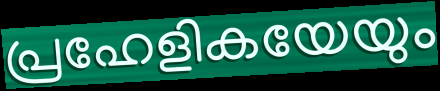
പ്രഹേളികയേയും